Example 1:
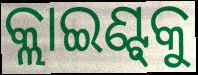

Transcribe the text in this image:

କ୍ଲାଇଣ୍ଟ୍‌କୁ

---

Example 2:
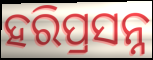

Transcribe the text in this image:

ହରିପ୍ରସନ୍ନ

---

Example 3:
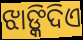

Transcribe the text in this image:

ଝାଙ୍କିଦିଏ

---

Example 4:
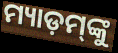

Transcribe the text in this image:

ମ୍ୟାଡ଼ମ୍‌ଙ୍କୁ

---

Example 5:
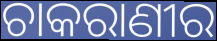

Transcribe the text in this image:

ଚାକରାଣୀର